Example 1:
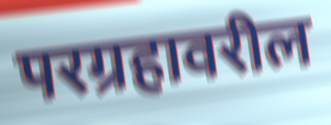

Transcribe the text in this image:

परग्रहावरील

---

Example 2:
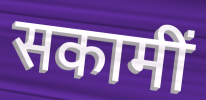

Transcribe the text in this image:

सकामीं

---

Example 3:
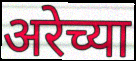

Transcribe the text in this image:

अरेच्या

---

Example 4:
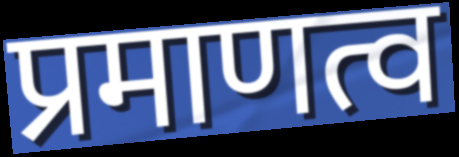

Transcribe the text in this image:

प्रमाणत्व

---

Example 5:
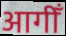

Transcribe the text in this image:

आगीँ